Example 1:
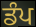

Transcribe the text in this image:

ਡੰਪ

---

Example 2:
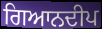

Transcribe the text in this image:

ਗਿਆਨਦੀਪ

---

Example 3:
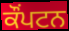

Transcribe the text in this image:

ਕੌਂਪਟਨ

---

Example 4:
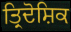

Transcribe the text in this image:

ਤ੍ਰਿਦੋਸ਼ਿਕ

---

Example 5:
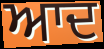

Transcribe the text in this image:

ਆਦ